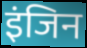
इंजिन